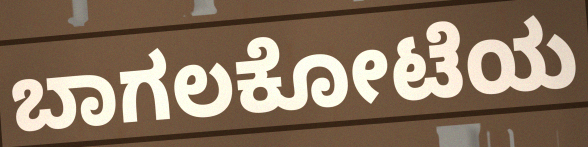
ಬಾಗಲಕೋಟೆಯ